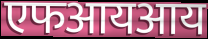
एफआयआय